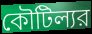
কৌটিল্যর